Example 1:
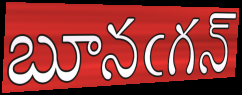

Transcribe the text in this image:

బూనఁగన్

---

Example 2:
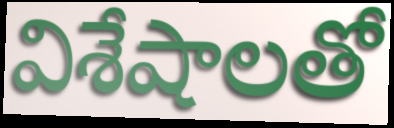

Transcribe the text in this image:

విశేషాలతో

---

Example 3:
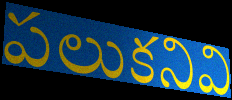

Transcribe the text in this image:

పలుకనివి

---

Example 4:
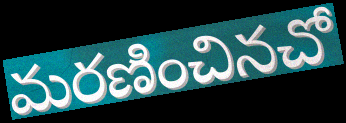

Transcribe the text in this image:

మరణించినచో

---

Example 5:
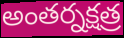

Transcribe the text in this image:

అంతర్నక్షత్ర